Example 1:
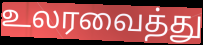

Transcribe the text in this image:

உலரவைத்து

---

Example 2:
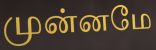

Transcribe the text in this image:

முன்னமே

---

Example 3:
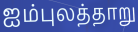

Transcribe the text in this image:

ஐம்புலத்தாறு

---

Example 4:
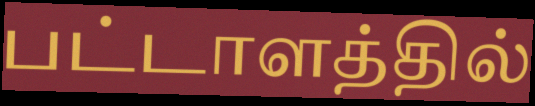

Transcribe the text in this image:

பட்டாளத்தில்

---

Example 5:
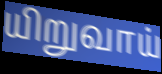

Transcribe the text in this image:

யிறுவாய்